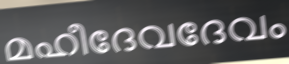
മഹീദേവദേവം